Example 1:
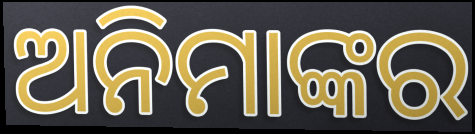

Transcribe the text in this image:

ଅନିମାଙ୍କର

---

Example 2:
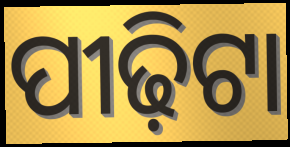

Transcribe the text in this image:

ପୀଢ଼ିଟା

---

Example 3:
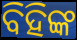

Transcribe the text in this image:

ବିହିଙ୍କ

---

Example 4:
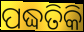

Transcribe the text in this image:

ପଦ୍ଧତିକି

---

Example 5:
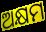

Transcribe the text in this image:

ଅକ୍ଷମ